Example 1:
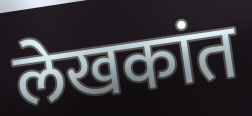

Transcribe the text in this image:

लेखकांत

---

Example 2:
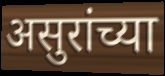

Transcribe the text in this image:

असुरांच्या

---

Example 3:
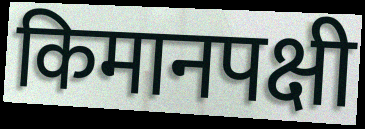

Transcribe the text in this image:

किमानपक्षी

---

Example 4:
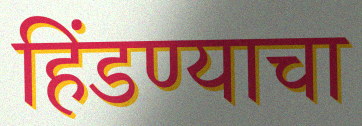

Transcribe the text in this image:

हिंडण्याचा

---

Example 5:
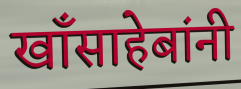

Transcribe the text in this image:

खॉंसाहेबांनी